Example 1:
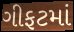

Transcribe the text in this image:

ગીફટમાં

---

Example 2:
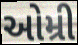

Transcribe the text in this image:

ઓમ્રી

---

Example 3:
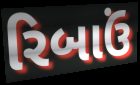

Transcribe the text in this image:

રિબાઉં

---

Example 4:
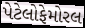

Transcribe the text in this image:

પેટેલોફેમોરલ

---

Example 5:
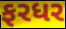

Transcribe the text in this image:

ફરધર